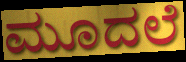
ಮೂದಲೆ